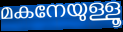
മകനേയുള്ളൂ